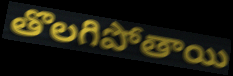
తొలగిపోతాయి